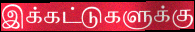
இக்கட்டுகளுக்கு